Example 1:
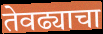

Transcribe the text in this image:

तेवढ्याचा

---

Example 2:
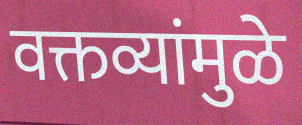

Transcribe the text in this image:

वक्तव्यांमुळे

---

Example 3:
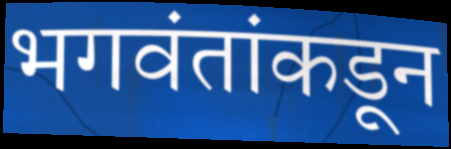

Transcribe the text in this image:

भगवंतांकडून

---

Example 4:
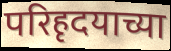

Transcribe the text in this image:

परिहृदयाच्या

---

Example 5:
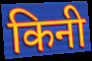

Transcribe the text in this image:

किनी